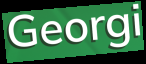
Georgi